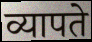
व्यापते